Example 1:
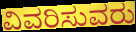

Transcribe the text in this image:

ವಿವರಿಸುವರು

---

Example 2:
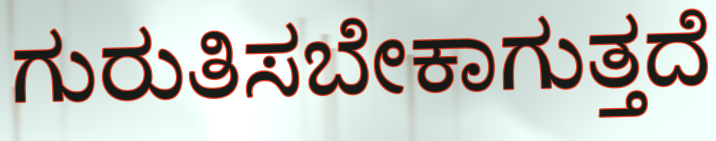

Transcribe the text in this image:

ಗುರುತಿಸಬೇಕಾಗುತ್ತದೆ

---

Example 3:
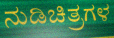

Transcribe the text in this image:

ನುಡಿಚಿತ್ರಗಳ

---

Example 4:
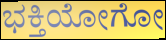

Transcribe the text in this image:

ಭಕ್ತಿಯೋಗೋ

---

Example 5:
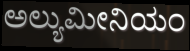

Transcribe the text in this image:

ಅಲ್ಯುಮೀನಿಯಂ